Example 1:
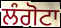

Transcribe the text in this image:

ਲੰਗੋਟਾ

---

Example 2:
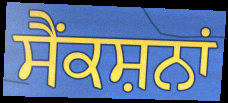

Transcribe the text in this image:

ਸੈਂਕਸ਼ਨਾਂ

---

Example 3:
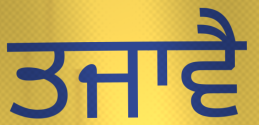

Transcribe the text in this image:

ਤਜਾਵੈ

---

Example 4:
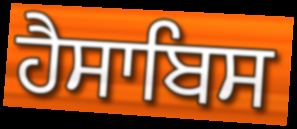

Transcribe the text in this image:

ਹੈਸਾਬਿਸ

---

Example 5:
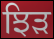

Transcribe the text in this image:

ਝਿੜ